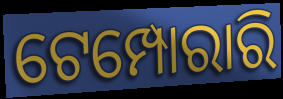
ଟେମ୍ପୋରାରି